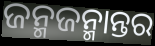
ଜନ୍ମଜନ୍ମାନ୍ତର